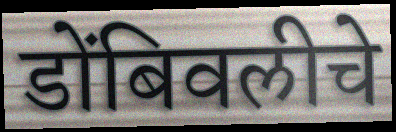
डोंबिवलीचे